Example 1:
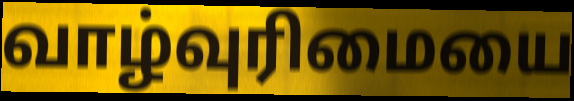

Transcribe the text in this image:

வாழ்வுரிமையை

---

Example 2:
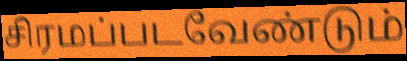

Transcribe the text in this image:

சிரமப்படவேண்டும்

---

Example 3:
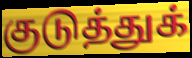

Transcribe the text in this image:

குடுத்துக்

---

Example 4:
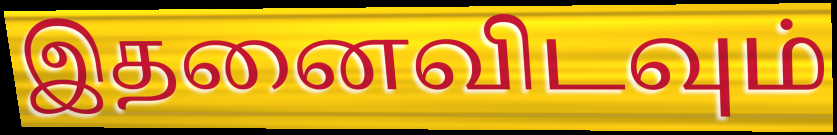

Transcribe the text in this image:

இதனைவிடவும்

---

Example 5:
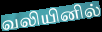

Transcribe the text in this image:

வலியினில்